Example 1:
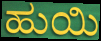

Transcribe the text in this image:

ಹುಯಿ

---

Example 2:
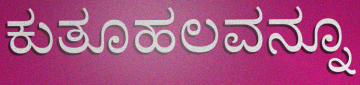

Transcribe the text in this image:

ಕುತೂಹಲವನ್ನೂ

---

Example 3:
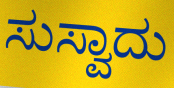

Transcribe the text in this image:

ಸುಸ್ವಾದು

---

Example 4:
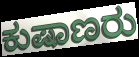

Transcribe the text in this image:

ಕುಷಾಣರು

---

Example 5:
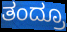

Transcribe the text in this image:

ತಂದ್ರೂ